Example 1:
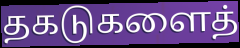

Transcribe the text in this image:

தகடுகளைத்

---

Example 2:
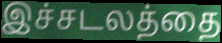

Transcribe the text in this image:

இச்சடலத்தை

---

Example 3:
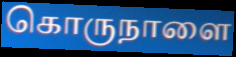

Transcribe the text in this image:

கொருநாளை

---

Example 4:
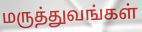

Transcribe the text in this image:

மருத்துவங்கள்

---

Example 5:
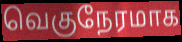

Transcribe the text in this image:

வெகுநேரமாக